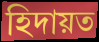
হিদায়ত